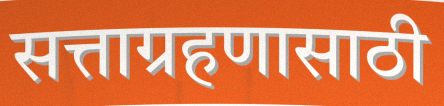
सत्ताग्रहणासाठी